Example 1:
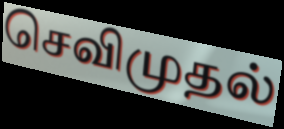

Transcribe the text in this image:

செவிமுதல்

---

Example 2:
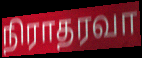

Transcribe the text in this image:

நிராதரவா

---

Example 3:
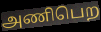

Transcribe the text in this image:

அணிபெற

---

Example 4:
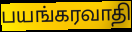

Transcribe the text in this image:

பயங்கரவாதி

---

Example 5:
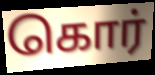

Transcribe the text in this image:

கொர்